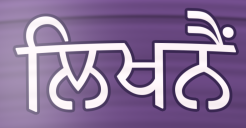
ਲਿਖਨੈਂ